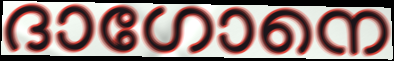
ദാഗോനെ